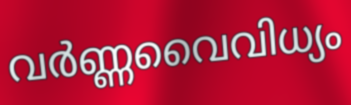
വർണ്ണവൈവിധ്യം